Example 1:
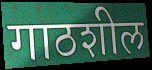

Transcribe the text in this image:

गाठशील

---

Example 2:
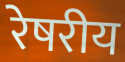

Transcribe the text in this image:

रेषरीय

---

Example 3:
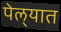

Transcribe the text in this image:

पेल्यात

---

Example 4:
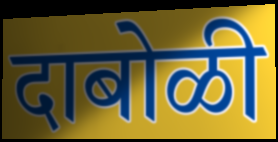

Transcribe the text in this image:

दाबोळी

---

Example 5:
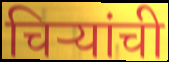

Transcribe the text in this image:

चिऱ्यांची